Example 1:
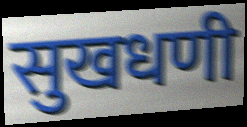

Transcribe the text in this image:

सुखधणी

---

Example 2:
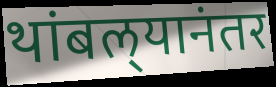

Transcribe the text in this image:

थांबल्यानंतर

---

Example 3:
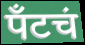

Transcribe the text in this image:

पँटचं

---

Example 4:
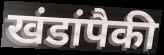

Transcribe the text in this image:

खंडांपैकी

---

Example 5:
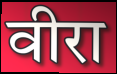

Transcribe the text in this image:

वीरा